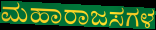
ಮಹಾರಾಜಸಗಳ